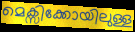
മെക്സിക്കോയിലുള്ള